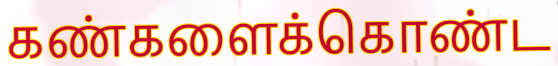
கண்களைக்கொண்ட